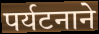
पर्यटनाने